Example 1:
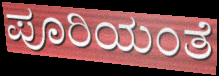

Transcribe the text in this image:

ಪೂರಿಯಂತೆ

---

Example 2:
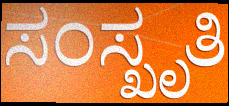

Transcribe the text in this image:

ಸಂಸ್ಖೃತಿ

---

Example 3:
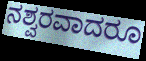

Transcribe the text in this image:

ನಶ್ವರವಾದರೂ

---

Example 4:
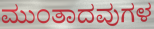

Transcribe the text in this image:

ಮುಂತಾದವುಗಳ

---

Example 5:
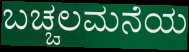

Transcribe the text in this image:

ಬಚ್ಚಲಮನೆಯ